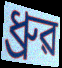
ধ্ৰুৱ